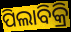
ପିଲାବିକ୍ରି